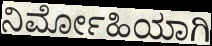
ನಿರ್ಮೋಹಿಯಾಗಿ